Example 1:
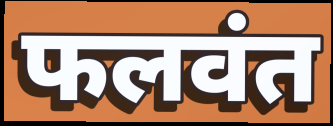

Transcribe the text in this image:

फलवंत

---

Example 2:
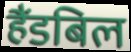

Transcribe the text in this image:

हैंडबिल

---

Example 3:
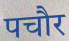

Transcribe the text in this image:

पचौर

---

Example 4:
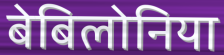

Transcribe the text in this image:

बेबिलोनिया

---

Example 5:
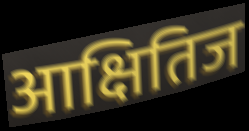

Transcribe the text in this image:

आक्षितिज